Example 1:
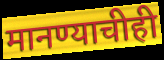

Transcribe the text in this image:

मानण्याचीही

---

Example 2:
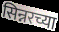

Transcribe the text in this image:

सिन्नरच्या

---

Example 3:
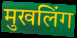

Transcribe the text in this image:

मुखलिंग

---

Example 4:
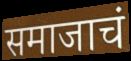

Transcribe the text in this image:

समाजाचं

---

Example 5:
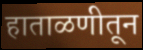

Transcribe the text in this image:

हाताळणीतून